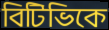
বিটিভিকে